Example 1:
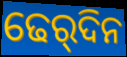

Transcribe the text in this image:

ଢେର୍‌ଦିନ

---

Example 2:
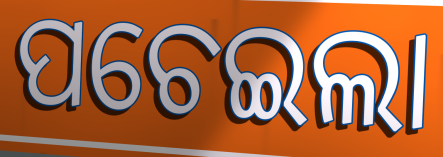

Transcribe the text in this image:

ପଚେଇଲା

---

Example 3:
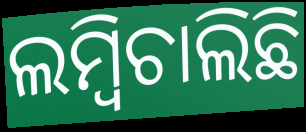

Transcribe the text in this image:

ଲମ୍ବିଚାଲିଛି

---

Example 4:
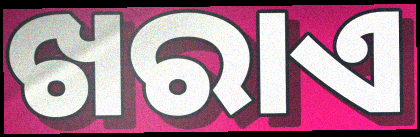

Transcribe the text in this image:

ଖରାଏ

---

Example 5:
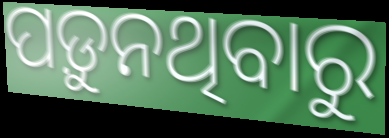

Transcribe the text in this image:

ପଡ଼ୁନଥିବାରୁ